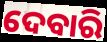
ଦେବାରି